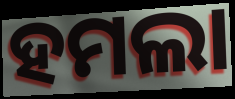
ହମଲା